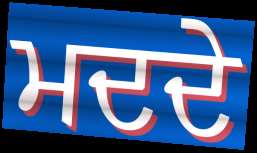
ਮਦਦੇ